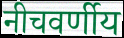
नीचवर्णीय